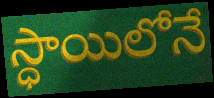
స్ధాయిలోనే